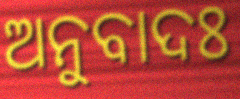
ଅନୁବାଦଃ